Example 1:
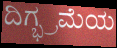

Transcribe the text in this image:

ದಿಗ್ಭ್ರಮೆಯ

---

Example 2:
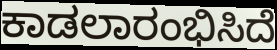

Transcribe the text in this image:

ಕಾಡಲಾರಂಭಿಸಿದೆ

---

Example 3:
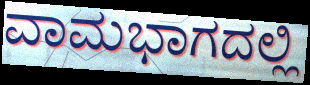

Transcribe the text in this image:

ವಾಮಭಾಗದಲ್ಲಿ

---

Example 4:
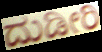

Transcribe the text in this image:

ದುಡೀರಿ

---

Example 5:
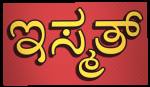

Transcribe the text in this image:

ಇಸ್ಮತ್